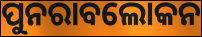
ପୁନରାବଲୋକନ